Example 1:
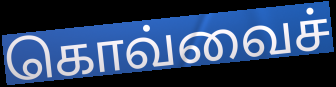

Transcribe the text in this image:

கொவ்வைச்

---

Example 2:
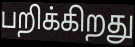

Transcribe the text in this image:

பறிக்கிறது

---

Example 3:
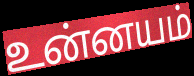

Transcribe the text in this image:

உன்னயம்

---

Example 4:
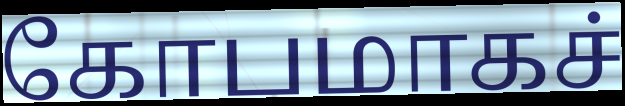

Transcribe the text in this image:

கோபமாகச்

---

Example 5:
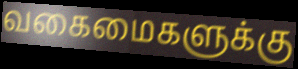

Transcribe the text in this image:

வகைமைகளுக்கு